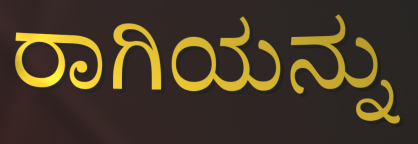
ರಾಗಿಯನ್ನು